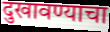
दुखावण्याचा